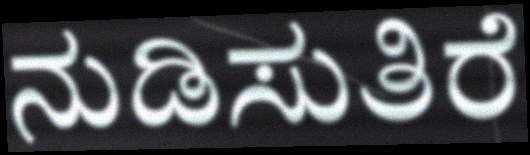
ನುಡಿಸುತಿರೆ